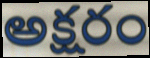
అక్షరం